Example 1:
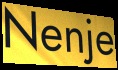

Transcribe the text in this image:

Nenje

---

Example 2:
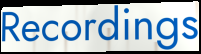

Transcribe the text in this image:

Recordings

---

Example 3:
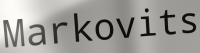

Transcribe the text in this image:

Markovits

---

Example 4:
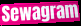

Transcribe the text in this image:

Sewagram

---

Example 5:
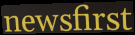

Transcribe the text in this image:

newsfirst